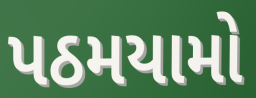
પઠમયામો